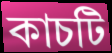
কাচটি